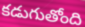
కడుగుతోంది